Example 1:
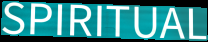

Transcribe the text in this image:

SPIRITUAL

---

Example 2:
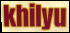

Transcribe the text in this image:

khilyu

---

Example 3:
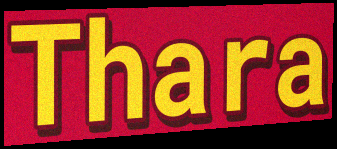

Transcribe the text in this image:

Thara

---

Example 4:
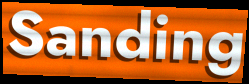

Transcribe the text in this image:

Sanding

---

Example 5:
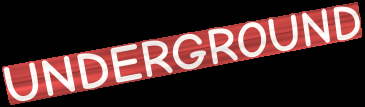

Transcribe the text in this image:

UNDERGROUND